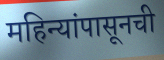
महिन्यांपासूनची